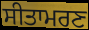
ਸੀਤਾਮਰਣ